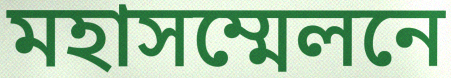
মহাসম্মেলনে